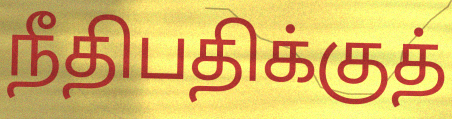
நீதிபதிக்குத்